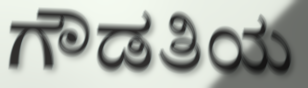
ಗೌಡತಿಯ